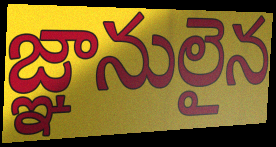
జ్ఞానులైన